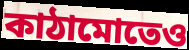
কাঠামোতেও